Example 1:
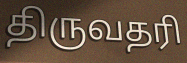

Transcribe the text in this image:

திருவதரி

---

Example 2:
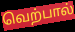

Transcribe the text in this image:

வெற்பால்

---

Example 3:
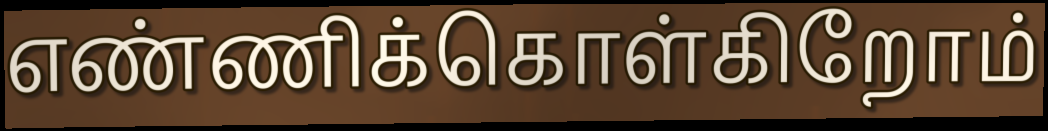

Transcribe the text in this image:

எண்ணிக்கொள்கிறோம்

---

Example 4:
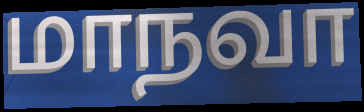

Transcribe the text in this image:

மாநவா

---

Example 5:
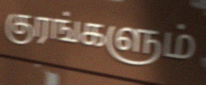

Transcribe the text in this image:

குரங்களும்